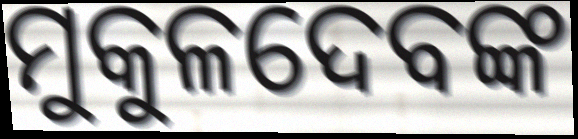
ମୁକୁଳଦେବଙ୍କ